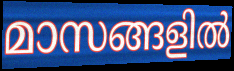
മാസങ്ങളിൽ